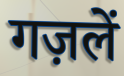
गज़लें